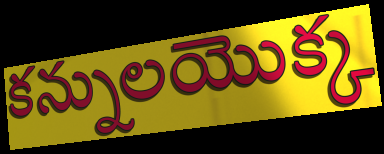
కన్నులయొక్క